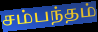
சம்பந்தம்